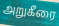
அறுகீரை